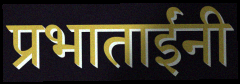
प्रभाताईंनी